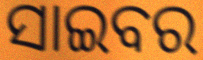
ସାଇବର